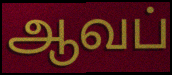
ஆவப்